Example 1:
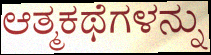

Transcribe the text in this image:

ಆತ್ಮಕಥೆಗಳನ್ನು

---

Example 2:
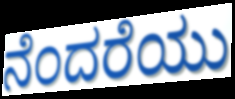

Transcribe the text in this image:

ನೆಂದರೆಯು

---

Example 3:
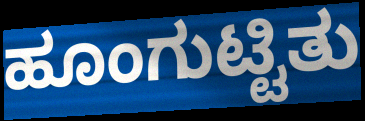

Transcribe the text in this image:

ಹೂಂಗುಟ್ಟಿತು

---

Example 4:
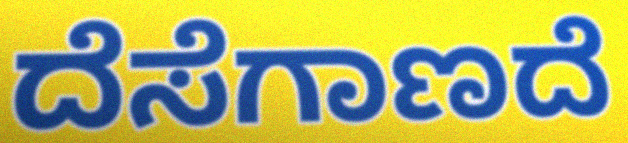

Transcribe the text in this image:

ದೆಸೆಗಾಣದೆ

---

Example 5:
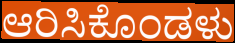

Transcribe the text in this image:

ಆರಿಸಿಕೊಂಡಳು